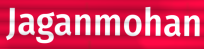
Jaganmohan